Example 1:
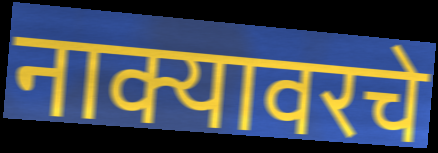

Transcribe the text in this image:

नाक्यावरचे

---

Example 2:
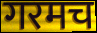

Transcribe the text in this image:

गरमच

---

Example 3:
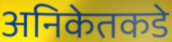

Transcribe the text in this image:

अनिकेतकडे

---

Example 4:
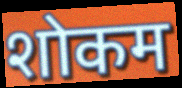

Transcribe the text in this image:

शोकम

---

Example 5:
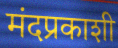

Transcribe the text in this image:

मंदप्रकाशी